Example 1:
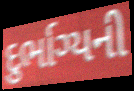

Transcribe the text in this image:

દુર્ભાગ્યની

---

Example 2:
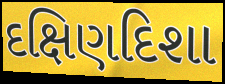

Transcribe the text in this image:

દક્ષિણદિશા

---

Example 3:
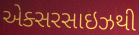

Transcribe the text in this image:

એક્સરસાઇઝથી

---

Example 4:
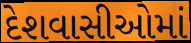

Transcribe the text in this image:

દેશવાસીઓમાં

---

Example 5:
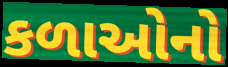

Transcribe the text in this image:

કળાઓનો